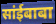
सांईबाबा